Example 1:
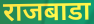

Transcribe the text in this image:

राजबाडा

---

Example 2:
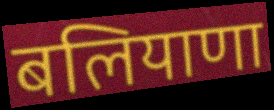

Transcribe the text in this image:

बलियाणा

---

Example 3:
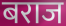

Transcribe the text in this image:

बराज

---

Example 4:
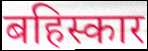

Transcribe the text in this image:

बहिस्कार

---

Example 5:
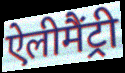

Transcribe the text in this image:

ऐलीमैंट्री